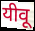
यीवू